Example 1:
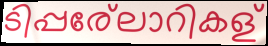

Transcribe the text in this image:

ടിപ്പര്ലോറികള്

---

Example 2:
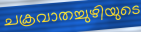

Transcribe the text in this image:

ചക്രവാതച്ചുഴിയുടെ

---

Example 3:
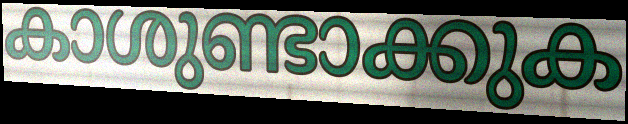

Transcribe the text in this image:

കാശുണ്ടാക്കുക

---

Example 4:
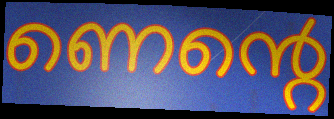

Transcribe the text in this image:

ണെന്റെ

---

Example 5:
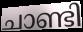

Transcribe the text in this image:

ചാണ്ടി